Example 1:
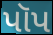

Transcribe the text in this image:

પૉપ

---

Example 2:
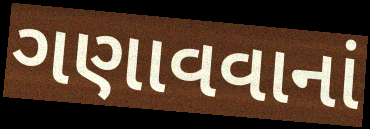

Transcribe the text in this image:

ગણાવવાનાં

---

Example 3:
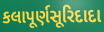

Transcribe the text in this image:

કલાપૂર્ણસૂરિદાદા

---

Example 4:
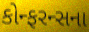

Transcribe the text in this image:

કોન્ફરન્સના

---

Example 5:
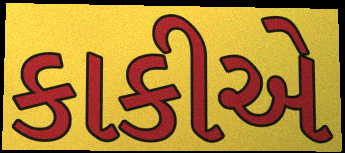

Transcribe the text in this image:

કાકીએ